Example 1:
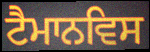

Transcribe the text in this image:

ਟੈਮਾਨਵਿਸ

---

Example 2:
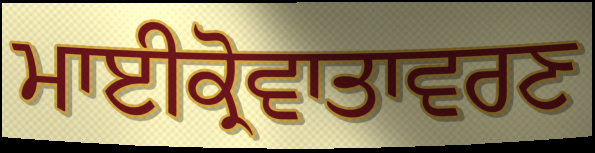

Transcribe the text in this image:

ਮਾਈਕ੍ਰੋਵਾਤਾਵਰਣ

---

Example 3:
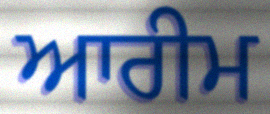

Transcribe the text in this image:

ਆਰੀਮ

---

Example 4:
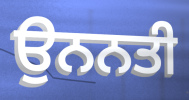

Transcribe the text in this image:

ਉਨਨਤੀ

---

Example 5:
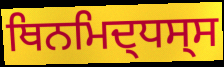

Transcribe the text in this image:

ਥਿਨਮਿਦ੍ਧਸ੍ਸ